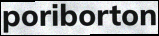
poriborton